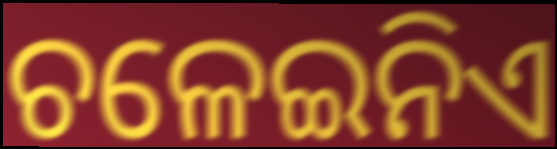
ଚଳେଇନିଏ